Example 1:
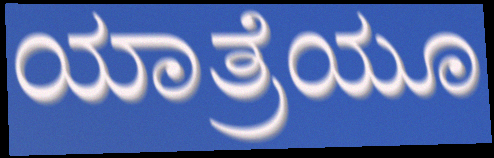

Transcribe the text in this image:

ಯಾತ್ರೆಯೂ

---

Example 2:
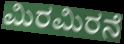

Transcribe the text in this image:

ಮಿರಮಿರನೆ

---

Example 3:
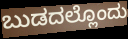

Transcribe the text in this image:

ಬುಡದಲ್ಲೊಂದು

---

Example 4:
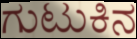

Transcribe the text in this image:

ಗುಟುಕಿನ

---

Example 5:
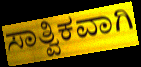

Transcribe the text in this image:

ಸಾತ್ವಿಕವಾಗಿ